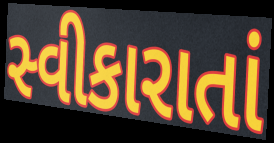
સ્વીકારાતાં